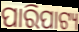
ପାରିପାଟ୍ୟ